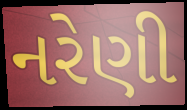
નરેણી